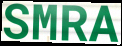
SMRA